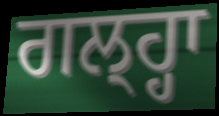
ਗਲ੍ਹ੍ਹਾ